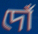
দোঁ